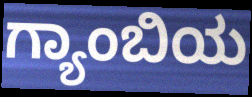
ಗ್ಯಾಂಬಿಯ